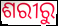
ଶରୀରୁ